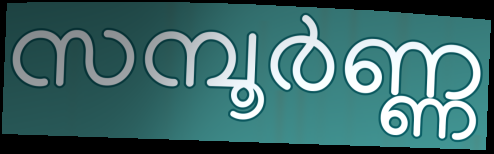
സമ്പൂർണ്ണ